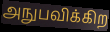
அநுபவிக்கிற